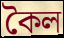
কৈল